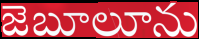
జెబూలూను